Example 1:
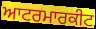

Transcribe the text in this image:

ਆਟਰਮਾਰਕੀਟ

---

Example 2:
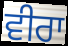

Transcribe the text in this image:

ਵੀਰਾ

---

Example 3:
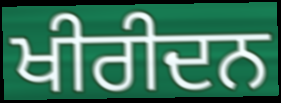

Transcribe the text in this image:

ਖੀਰੀਦਨ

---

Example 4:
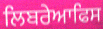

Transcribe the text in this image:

ਲਿਬਰੇਆਫਿਸ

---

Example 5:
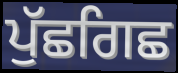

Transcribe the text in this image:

ਪੁੱਛਗਿਛ